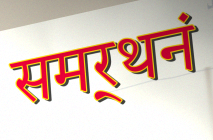
समर्थनं